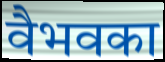
वैभवका